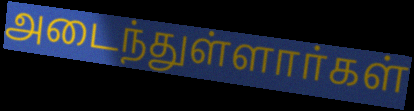
அடைந்துள்ளார்கள்